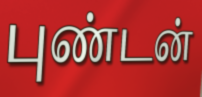
புண்டன்